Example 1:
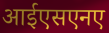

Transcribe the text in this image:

आईएसएनए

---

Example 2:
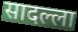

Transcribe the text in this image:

सादल्ला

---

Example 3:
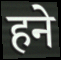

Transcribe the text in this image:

हने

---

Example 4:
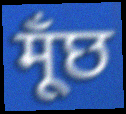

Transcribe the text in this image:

मूँछ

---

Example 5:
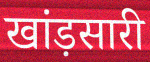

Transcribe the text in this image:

खांड़सारी